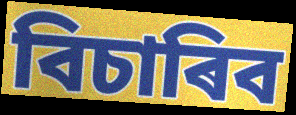
বিচাৰিব